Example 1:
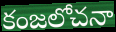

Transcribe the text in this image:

కంజలోచనా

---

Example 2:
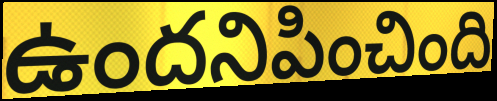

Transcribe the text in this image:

ఉందనిపించింది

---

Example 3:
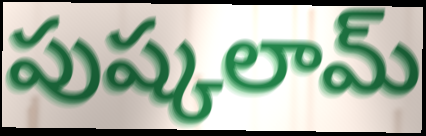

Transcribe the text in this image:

పుష్కలామ్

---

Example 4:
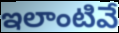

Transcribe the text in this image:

ఇలాంటివే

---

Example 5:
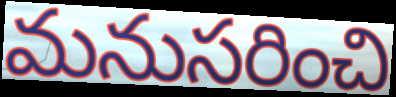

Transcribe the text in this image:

మనుసరించి